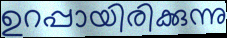
ഉറപ്പായിരിക്കുന്നു